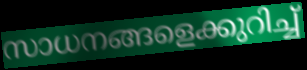
സാധനങ്ങളെക്കുറിച്ച്